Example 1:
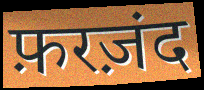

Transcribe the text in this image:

फ़रज़ंद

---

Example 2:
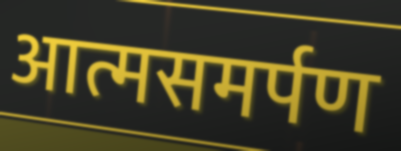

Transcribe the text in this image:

आत्मसमर्पण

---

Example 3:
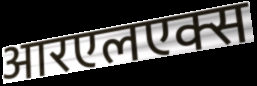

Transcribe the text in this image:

आरएलएक्स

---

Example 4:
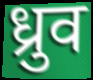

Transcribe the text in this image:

ध्रुव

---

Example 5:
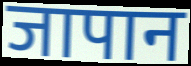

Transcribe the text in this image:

जापान